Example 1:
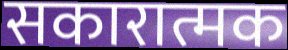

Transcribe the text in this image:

सकारात्‍मक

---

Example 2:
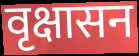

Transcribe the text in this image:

वृक्षासन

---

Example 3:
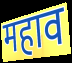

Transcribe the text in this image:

महाव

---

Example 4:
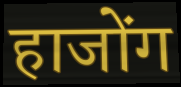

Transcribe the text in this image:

हाजोंग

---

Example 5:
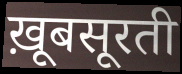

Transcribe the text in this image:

ख़ूबसूरती